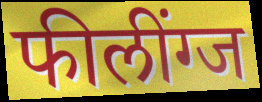
फीलींग्ज